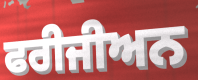
ਫਰੀਜੀਅਨ